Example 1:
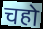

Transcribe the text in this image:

चहो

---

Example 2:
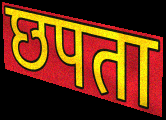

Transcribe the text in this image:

छपता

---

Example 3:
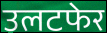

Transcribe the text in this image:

उलटफेर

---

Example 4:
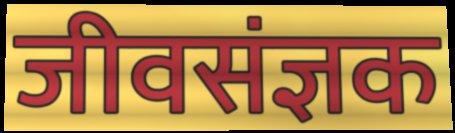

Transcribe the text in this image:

जीवसंज्ञक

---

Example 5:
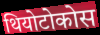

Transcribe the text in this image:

थियोटोकोस